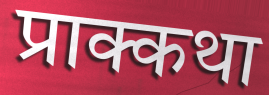
प्राक्कथा